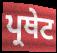
ਪ੍ਰਥੇਟ